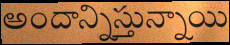
అందాన్నిస్తున్నాయి